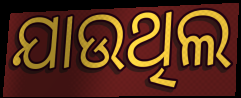
ଯାଉଥିଲ